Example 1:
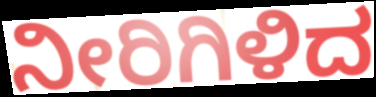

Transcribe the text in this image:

ನೀರಿಗಿಳಿದ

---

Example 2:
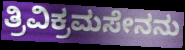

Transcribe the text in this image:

ತ್ರಿವಿಕ್ರಮಸೇನನು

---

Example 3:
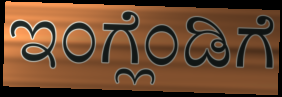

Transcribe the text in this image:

ಇಂಗ್ಲೆಂಡಿಗೆ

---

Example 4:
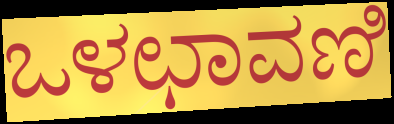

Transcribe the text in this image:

ಒಳಛಾವಣಿ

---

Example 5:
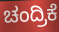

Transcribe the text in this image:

ಚಂದ್ರಿಕೆ